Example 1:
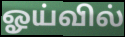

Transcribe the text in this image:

ஓய்வில்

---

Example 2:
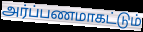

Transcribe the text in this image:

அர்ப்பணமாகட்டும்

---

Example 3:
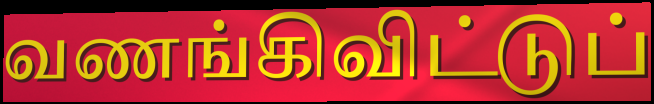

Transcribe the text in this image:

வணங்கிவிட்டுப்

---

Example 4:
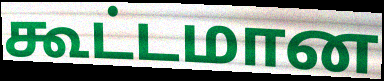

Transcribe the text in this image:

கூட்டமான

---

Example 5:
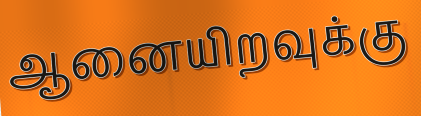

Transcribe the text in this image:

ஆனையிறவுக்கு